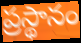
ప్రస్థానం